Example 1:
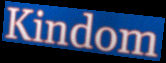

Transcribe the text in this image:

Kindom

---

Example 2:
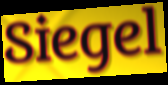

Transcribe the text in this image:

Siegel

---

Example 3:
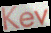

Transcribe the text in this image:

Kev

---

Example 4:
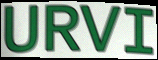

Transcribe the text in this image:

URVI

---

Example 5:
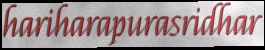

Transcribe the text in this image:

hariharapurasridhar